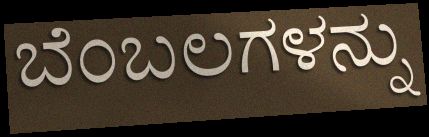
ಬೆಂಬಲಗಳನ್ನು